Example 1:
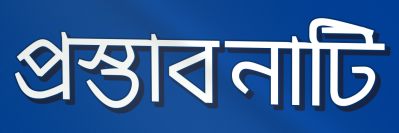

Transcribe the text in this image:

প্রস্তাবনাটি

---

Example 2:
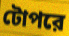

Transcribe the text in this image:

টোপরে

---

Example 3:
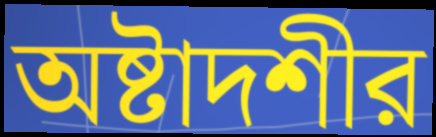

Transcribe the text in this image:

অষ্টাদশীর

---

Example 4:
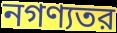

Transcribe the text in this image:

নগণ্যতর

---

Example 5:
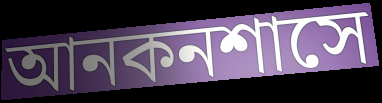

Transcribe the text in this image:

আনকনশাসে